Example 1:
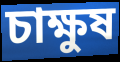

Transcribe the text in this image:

চাক্ষুষ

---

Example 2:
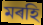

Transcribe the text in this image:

মৰহি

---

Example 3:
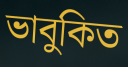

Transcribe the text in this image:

ভাবুকিত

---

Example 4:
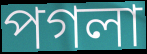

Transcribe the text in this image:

পগলা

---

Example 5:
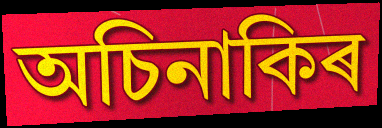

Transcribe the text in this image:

অচিনাকিৰ